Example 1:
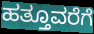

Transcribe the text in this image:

ಹತ್ತೂವರೆಗೆ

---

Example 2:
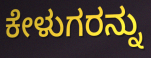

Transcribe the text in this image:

ಕೇಳುಗರನ್ನು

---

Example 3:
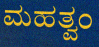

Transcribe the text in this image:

ಮಹತ್ವಂ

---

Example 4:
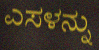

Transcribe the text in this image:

ಎಸಳನ್ನು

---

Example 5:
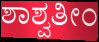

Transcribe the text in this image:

ಶಾಶ್ವತೀಂ